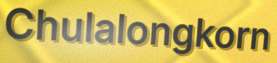
Chulalongkorn